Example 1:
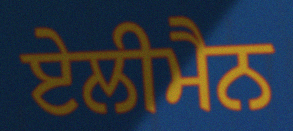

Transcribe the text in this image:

ਏਲੀਮੈਨ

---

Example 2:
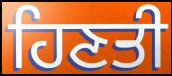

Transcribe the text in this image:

ਹਿਣਤੀ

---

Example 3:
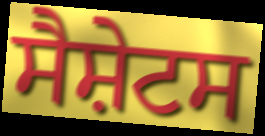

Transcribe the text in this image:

ਸੈਸ਼ੇਟਸ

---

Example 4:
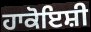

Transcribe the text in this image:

ਹਾਕੋਇਸ਼ੀ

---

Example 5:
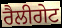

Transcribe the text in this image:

ਰੈਲੀਗੇਟ